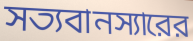
সত্যবানস্যারের